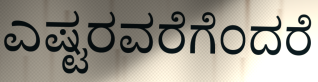
ಎಷ್ಟರವರೆಗೆಂದರೆ